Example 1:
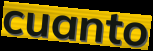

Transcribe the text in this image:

cuanto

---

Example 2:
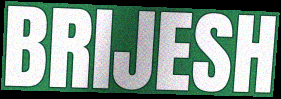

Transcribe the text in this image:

BRIJESH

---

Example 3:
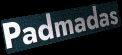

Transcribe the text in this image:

Padmadas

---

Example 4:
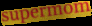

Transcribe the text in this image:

supermom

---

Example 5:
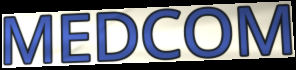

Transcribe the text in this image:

MEDCOM